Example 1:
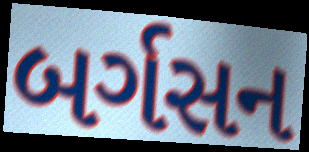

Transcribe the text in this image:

બર્ગસન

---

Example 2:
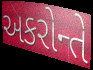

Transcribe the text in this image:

અકરોન્તે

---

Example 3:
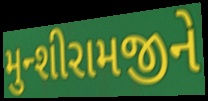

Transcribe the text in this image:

મુન્શીરામજીને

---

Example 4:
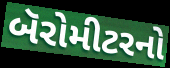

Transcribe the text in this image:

બૅરોમીટરનો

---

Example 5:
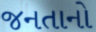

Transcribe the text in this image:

જનતાનો